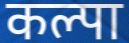
कल्पा